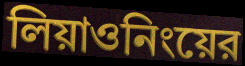
লিয়াওনিংয়ের